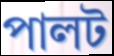
পালট